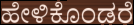
ಹೇಳಿಕೊಂಡರೆ